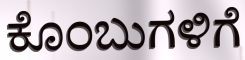
ಕೊಂಬುಗಳಿಗೆ